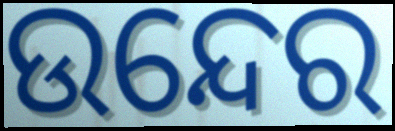
ଉନ୍ଦେର